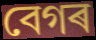
বেগৰ